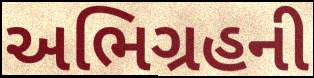
અભિગ્રહની